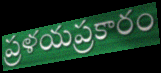
ప్రళయప్రకారం